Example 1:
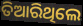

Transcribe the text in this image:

ତିଆରିଥିଲେ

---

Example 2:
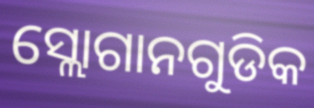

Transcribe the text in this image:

ସ୍ଲୋଗାନଗୁଡିକ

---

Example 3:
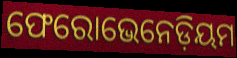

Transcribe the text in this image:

ଫେରୋଭେନେଡ଼ିୟମ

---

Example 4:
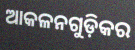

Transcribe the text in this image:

ଆକଳନଗୁଡ଼ିକର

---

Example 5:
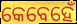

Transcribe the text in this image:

କେବେହେଁ